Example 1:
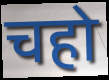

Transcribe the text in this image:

चहो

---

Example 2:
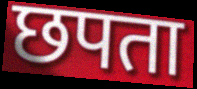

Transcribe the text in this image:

छपता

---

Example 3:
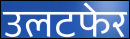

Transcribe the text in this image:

उलटफेर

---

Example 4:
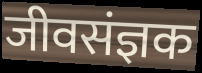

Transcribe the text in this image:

जीवसंज्ञक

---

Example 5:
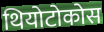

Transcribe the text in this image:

थियोटोकोस